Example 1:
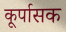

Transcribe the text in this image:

कूर्पासक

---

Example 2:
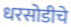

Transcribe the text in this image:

धरसोडीचे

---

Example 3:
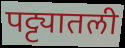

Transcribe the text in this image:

पट्ट्यातली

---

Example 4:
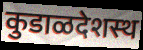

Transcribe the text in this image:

कुडाळदेशस्थ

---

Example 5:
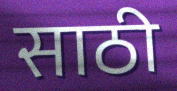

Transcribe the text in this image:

साठी